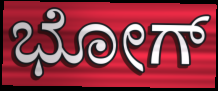
ಭೋಗ್